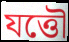
যত্তৌ